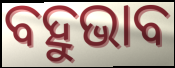
ବହୁଭାବ